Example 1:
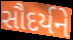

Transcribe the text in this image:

સૌદર્યને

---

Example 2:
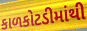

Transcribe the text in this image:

કાળકોટડીમાંથી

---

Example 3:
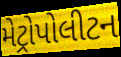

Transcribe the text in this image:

મેટ્રોપોલીટન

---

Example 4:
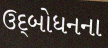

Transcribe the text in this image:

ઉદ્‌બોધનના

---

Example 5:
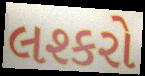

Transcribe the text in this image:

લશ્કરો